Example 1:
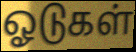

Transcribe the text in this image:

ஓடுகள்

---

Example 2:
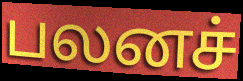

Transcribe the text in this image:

பலனச்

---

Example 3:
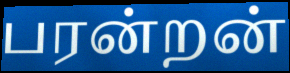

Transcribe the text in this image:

பரன்றன்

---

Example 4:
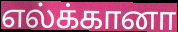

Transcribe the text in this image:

எல்க்கானா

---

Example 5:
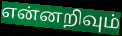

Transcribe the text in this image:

என்னறிவும்